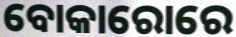
ବୋକାରୋରେ